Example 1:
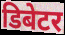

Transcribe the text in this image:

डिबेटर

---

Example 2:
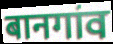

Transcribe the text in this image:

बानगांव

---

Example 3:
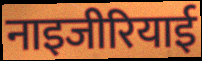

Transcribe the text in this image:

नाइजीरियाई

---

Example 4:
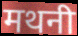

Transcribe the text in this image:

मथनी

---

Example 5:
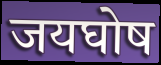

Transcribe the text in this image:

जयघोष